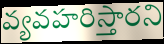
వ్యవహరిస్తారని